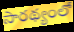
సారథ్యంలో